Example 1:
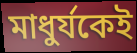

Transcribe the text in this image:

মাধুর্যকেই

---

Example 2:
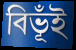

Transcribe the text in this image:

বিভূঁই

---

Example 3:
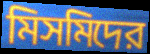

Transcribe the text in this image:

মিসমিদের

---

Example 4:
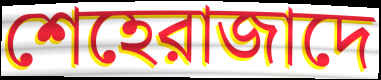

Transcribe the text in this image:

শেহেরাজাদে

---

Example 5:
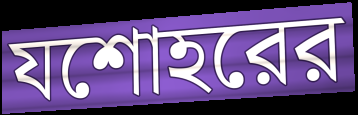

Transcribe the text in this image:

যশোহরের